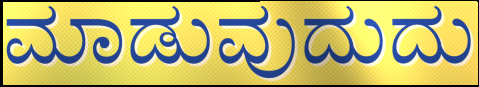
ಮಾಡುವುದುದು